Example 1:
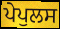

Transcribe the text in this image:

ਪੇਪੁਲਸ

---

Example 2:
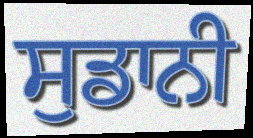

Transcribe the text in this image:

ਸੁਡਾਨੀ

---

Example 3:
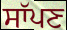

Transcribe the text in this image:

ਸਾੱਪਣ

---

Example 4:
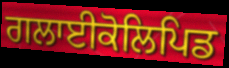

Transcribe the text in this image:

ਗਲਾਈਕੋਲਿਪਿਡ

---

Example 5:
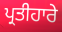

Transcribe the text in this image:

ਪ੍ਰਤੀਹਾਰੇ